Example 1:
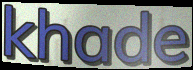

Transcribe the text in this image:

khade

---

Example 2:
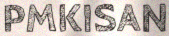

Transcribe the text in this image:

PMKISAN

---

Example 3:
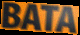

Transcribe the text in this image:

BATA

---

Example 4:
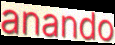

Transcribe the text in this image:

anando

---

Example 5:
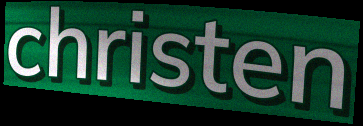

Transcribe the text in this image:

christen